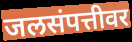
जलसंपत्तीवर